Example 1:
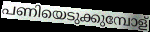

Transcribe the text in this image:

പണിയെടുക്കുമ്പോള്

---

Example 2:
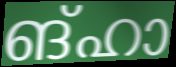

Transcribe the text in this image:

ങ്ഹാ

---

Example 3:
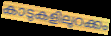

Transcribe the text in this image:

കാടുകളിലുറക്കം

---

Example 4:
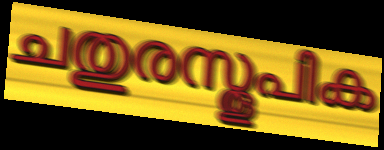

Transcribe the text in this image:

ചതുരസ്തൂപിക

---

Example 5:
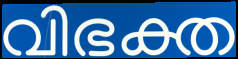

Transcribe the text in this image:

വിഭക്ത